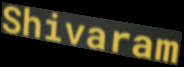
Shivaram